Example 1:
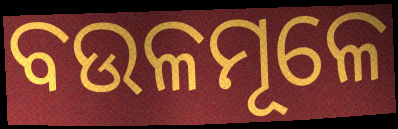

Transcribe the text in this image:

ବଉଳମୂଳେ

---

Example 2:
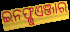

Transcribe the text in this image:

ଇନଫ୍ଳୁଏଞ୍ଜାର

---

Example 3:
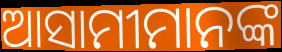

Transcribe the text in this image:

ଆସାମୀମାନଙ୍କ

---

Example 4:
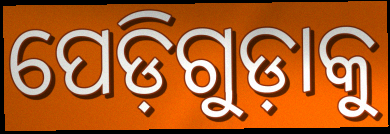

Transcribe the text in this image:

ପେଡ଼ିଗୁଡ଼ାକୁ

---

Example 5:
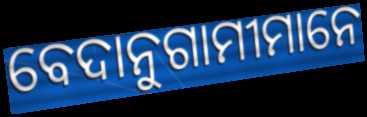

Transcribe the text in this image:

ବେଦାନୁଗାମୀମାନେ